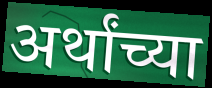
अर्थांच्या